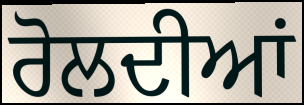
ਰੋਲਦੀਆਂ